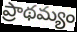
ప్రాథమ్యం